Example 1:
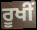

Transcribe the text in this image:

ਰੂਖੀਂ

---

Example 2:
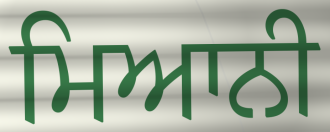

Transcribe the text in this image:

ਮਿਆਨੀ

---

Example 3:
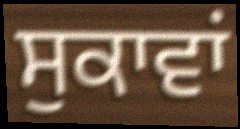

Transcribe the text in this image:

ਸੁਕਾਵਾਂ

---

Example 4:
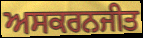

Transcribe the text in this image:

ਅਸਕਰਨਜੀਤ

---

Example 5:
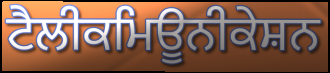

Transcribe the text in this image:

ਟੈਲੀਕਮਿਊਨੀਕੇਸ਼ਨ